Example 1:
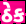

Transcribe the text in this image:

ઠેક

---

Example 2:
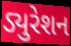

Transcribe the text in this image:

ડ્યુરેશન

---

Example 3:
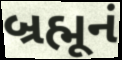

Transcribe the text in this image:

બ્રહ્મૂનં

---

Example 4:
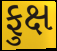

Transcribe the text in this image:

ફુક્ષ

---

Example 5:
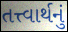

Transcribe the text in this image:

તત્ત્વાર્થનું